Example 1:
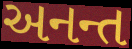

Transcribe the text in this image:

અનન્ત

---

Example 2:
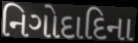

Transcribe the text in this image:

નિગોદાદિના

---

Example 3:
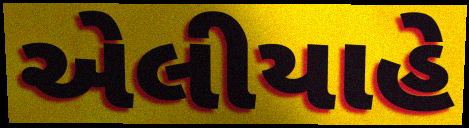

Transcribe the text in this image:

એલીયાહે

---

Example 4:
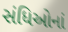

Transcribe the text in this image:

સંધિઓનાં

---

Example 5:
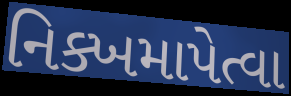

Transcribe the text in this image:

નિક્ખમાપેત્વા